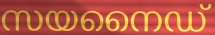
സയനൈഡ്